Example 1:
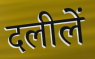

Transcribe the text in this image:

दलीलें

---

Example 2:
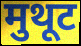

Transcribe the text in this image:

मुथूट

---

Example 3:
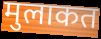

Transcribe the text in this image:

मुलाकत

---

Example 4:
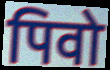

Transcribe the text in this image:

पिवो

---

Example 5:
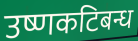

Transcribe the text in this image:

उष्णकटिबन्ध